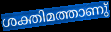
ശക്തിമത്താണു്